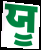
ਯੂ